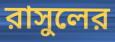
রাসুলের